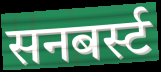
सनबर्स्ट